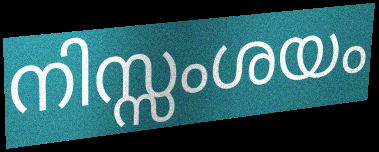
നിസ്സംശയം